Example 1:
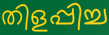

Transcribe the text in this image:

തിളപ്പിച്ച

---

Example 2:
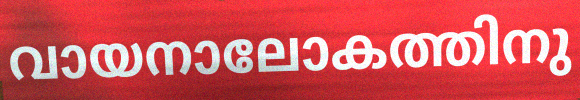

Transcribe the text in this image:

വായനാലോകത്തിനു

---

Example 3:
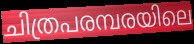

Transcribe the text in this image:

ചിത്രപരമ്പരയിലെ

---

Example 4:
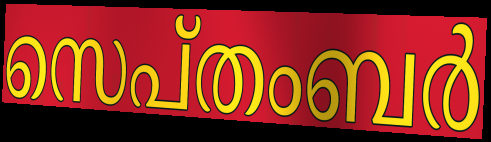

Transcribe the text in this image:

സെപ്തംബർ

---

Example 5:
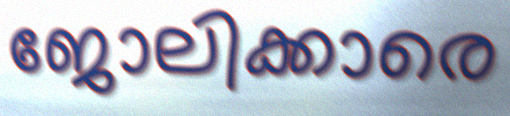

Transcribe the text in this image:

ജോലിക്കാരെ